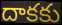
దాకకు